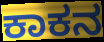
ಕಾಕನ